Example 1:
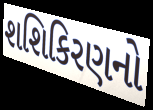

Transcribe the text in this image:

શશિકિરણનો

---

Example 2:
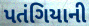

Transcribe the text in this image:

પતંગિયાની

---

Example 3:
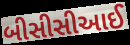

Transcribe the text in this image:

બીસીસીઆઈ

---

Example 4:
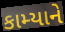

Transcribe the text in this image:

કામ્યાને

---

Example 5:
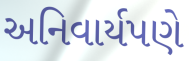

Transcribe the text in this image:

અનિવાર્યપણે